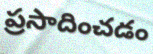
ప్రసాదించడం